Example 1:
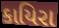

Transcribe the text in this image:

કાયિરા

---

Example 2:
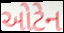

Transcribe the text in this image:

ઓટેન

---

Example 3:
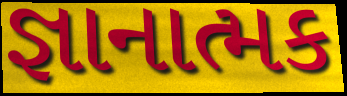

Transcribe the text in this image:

જ્ઞાનાત્મક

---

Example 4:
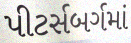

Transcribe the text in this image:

પીટર્સબર્ગમાં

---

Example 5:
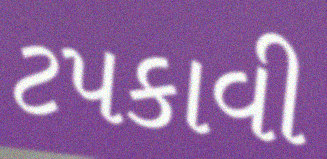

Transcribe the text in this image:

ટપકાવી